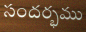
సందర్భము